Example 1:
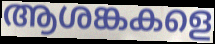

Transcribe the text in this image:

ആശങ്കകളെ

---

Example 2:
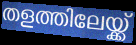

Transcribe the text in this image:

തളത്തിലേയ്ക്ക്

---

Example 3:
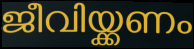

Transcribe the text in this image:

ജീവിയ്ക്കണം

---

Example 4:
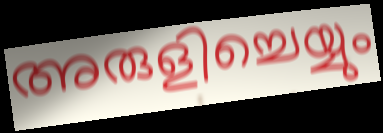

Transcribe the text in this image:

അരുളിച്ചെയ്യും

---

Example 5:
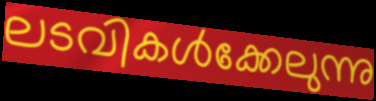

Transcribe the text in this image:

ലടവികൾക്കേലുന്നു